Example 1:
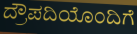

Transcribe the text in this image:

ದ್ರೌಪದಿಯೊಂದಿಗೆ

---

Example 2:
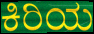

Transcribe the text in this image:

ಕಿರಿಯ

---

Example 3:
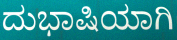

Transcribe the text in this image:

ದುಭಾಷಿಯಾಗಿ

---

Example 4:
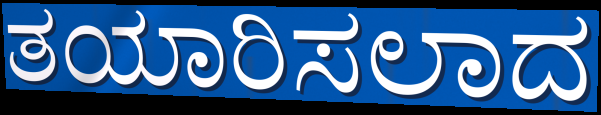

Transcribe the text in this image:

ತಯಾರಿಸಲಾದ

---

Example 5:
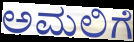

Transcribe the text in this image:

ಅಮಲಿಗೆ